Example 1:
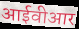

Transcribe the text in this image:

आईवीआर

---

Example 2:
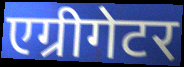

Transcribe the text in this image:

एग्रीगेटर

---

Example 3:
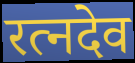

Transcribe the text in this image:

रत्नदेव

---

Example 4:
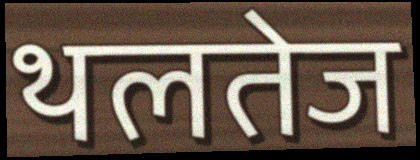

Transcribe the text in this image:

थलतेज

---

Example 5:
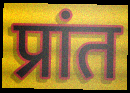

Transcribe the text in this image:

प्रांत